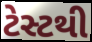
ટેસ્ટથી